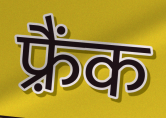
फ़्रैंक